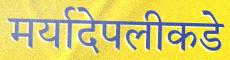
मर्यादेपलीकडे